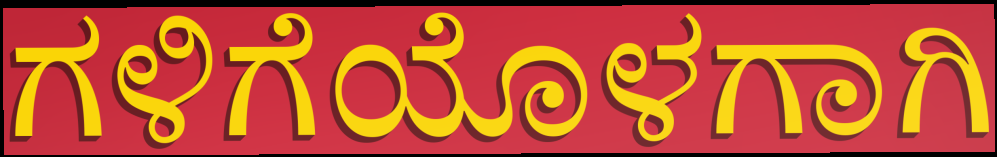
ಗಳಿಗೆಯೊಳಗಾಗಿ